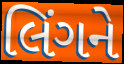
લિંગને